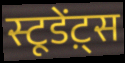
स्टूडेंट़्स